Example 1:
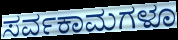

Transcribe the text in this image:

ಸರ್ವಕಾಮಗಳೂ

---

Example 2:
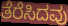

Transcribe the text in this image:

ತೆರೆಸಿದವು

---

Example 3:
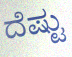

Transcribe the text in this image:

ದೆಷ್ಟು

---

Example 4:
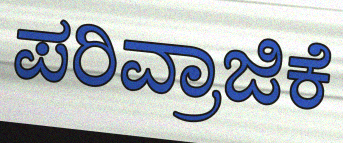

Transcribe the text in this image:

ಪರಿವ್ರಾಜಿಕೆ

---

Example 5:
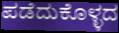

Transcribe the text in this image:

ಪಡೆದುಕೊಳ್ಳದ